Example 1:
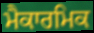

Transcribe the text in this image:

ਮੈਕਾਰਮਿਕ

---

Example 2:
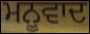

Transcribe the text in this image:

ਮਨੂਵਾਦ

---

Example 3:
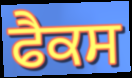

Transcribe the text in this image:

ਫੈਕਸ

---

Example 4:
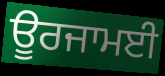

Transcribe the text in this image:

ਊਰਜਾਮਈ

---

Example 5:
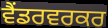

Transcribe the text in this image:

ਵੈਂਡਰਵਰਕਰ